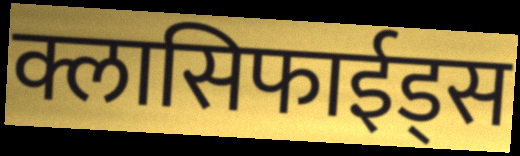
क्लासिफाईड्स